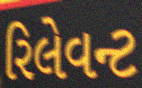
રિલેવન્ટ